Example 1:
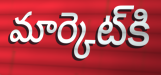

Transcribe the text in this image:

మార్కెట్‌కి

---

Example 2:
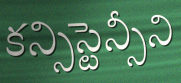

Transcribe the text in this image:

కన్సిస్టెన్సీని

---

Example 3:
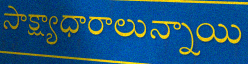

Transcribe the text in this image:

సాక్ష్యాధారాలున్నాయి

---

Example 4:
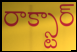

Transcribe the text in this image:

రాక్స్టార్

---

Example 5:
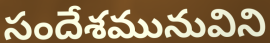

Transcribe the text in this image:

సందేశమునువిని